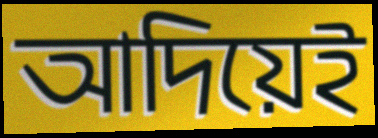
আদিয়েই